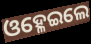
ଓହ୍ଳେଇଲେ